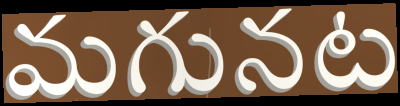
మగునట